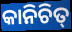
କାନିଚିତ୍